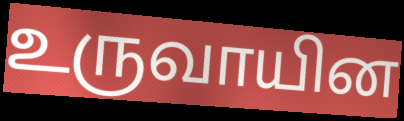
உருவாயின